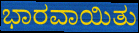
ಭಾರವಾಯಿತು